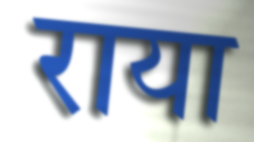
राया